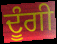
ਦੂੰਗੀ